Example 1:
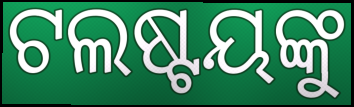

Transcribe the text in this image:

ଟଲଷ୍ଟୟଙ୍କୁ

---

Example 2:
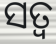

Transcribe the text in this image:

ସତ୍ୱ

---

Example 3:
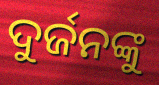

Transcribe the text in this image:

ଦୁର୍ଜନଙ୍କୁ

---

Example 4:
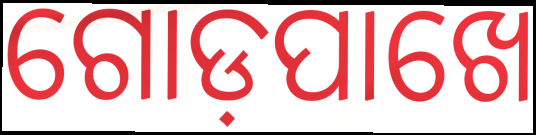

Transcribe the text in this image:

ଗୋଡ଼ପାଖେ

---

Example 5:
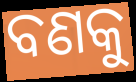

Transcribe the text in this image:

ବଣକୁ